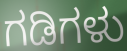
ಗಡಿಗಳು